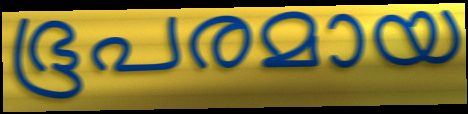
ഭൂപരമായ